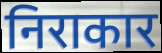
निराकार